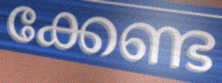
ക്കേണ്ട